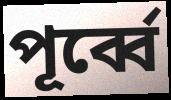
পূৰ্ব্বে